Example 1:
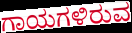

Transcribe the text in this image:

ಗಾಯಗಳಿರುವ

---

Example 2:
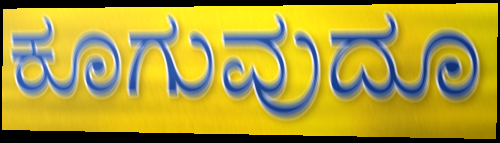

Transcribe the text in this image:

ಕೂಗುವುದೂ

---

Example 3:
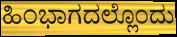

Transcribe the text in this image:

ಹಿಂಭಾಗದಲ್ಲೊಂದು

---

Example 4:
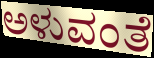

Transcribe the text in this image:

ಅಳುವಂತೆ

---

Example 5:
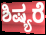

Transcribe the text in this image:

ಶಿಷ್ಯರೆ